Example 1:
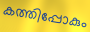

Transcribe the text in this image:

കത്തിപ്പോകും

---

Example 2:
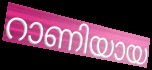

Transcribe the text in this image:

റാണിയായ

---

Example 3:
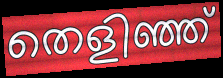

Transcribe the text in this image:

തെളിഞ്ഞ്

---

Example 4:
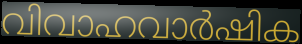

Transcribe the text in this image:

വിവാഹവാർഷിക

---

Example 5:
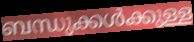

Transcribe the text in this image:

ബന്ധുക്കൾക്കുള്ള